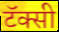
टॅक्सी